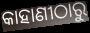
କାହାଣୀଠାରୁ